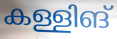
കള്ളിങ്